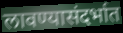
लावण्यासंदर्भात